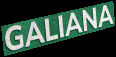
GALIANA